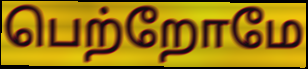
பெற்றோமே